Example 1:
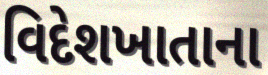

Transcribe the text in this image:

વિદેશખાતાના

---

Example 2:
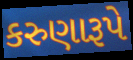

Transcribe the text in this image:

કરુણારૂપે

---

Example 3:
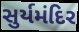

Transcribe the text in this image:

સુર્યમંદિર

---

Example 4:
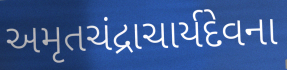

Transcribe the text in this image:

અમૃતચંદ્રાચાર્યદેવના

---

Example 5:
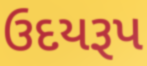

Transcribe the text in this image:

ઉદયરૂપ